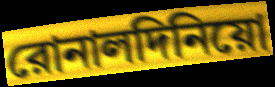
রোনালদিনিয়ো